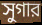
সুগার